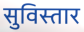
सुविस्तार